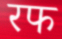
रफ